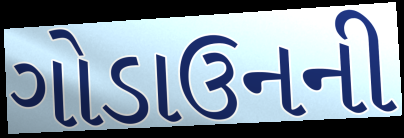
ગોડાઉનની